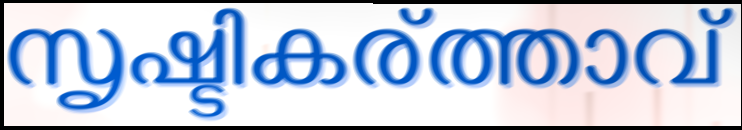
സൃഷ്ടികര്ത്താവ്